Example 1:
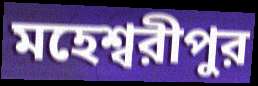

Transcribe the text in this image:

মহেশ্বরীপুর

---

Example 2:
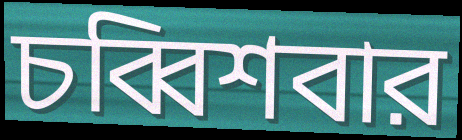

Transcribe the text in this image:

চব্বিশবার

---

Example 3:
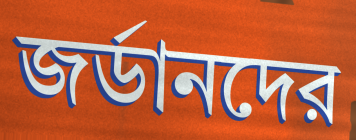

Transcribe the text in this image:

জর্ডানদের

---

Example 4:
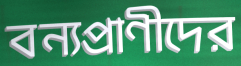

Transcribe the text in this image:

বন্যপ্রাণীদের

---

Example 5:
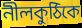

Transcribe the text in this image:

নীলকুঠিকে